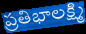
ప్రతిభాలక్ష్మి